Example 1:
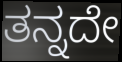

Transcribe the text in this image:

ತನ್ನದೇ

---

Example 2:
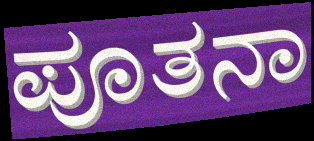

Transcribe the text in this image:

ಪೂತನಾ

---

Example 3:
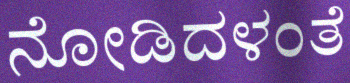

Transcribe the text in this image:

ನೋಡಿದಳಂತೆ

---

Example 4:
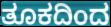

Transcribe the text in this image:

ತೂಕದಿಂದ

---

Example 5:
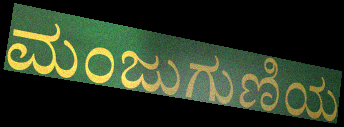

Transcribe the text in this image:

ಮಂಜುಗುಣಿಯ